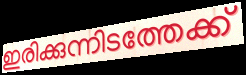
ഇരിക്കുന്നിടത്തേക്ക്